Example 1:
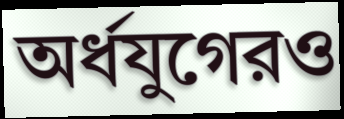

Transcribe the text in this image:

অর্ধযুগেরও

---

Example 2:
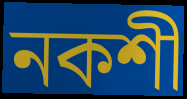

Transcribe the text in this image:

নকশী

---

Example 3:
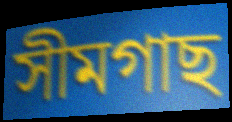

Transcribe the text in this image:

সীমগাছ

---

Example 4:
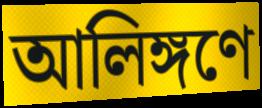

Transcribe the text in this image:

আলিঙ্গণে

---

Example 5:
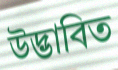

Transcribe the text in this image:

উদ্ভাবিত